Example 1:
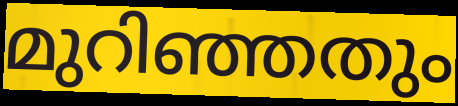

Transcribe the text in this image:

മുറിഞ്ഞതും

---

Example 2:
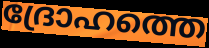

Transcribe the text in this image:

ദ്രോഹത്തെ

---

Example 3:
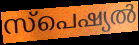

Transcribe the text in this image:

സ്‌പെഷ്യൽ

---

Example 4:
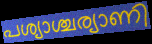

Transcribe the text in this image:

പശ്യാശ്ചര്യാണി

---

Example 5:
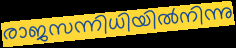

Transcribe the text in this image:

രാജസന്നിധിയിൽനിന്നു